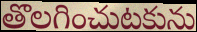
తొలగించుటకును